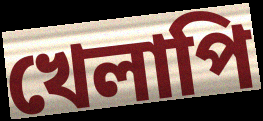
খেলাপি